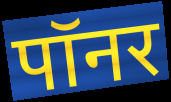
पॉनर